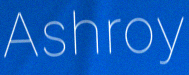
Ashroy